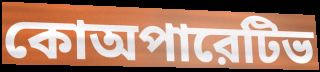
কোঅপারেটিভ